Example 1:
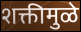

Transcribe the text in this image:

शक्तीमुळे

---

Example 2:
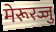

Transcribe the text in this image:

मेरूरज्जु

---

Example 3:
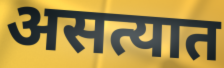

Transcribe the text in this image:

असत्यात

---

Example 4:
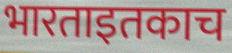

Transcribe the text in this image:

भारताइतकाच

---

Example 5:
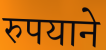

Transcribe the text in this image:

रुपयाने